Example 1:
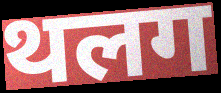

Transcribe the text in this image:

थलग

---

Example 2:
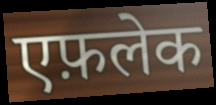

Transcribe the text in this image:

एफ़लेक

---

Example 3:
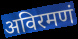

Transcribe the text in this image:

अविरमणं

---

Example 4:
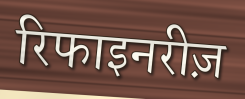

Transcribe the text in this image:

रिफाइनरीज़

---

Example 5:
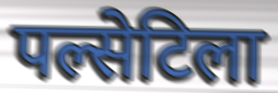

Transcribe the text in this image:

पल्सेटिला